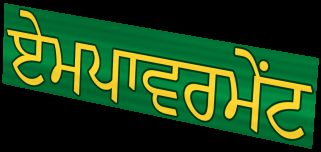
ਏਮਪਾਵਰਮੇਂਟ